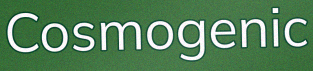
Cosmogenic